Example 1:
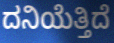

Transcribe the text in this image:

ದನಿಯೆತ್ತಿದೆ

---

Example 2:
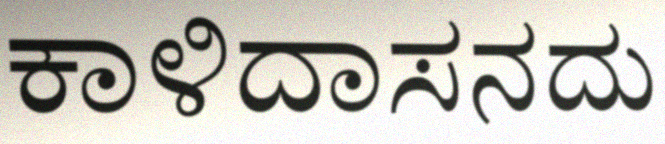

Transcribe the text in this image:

ಕಾಳಿದಾಸನದು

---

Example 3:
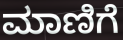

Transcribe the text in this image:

ಮಾಣಿಗೆ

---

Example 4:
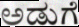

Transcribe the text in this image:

ಅಡುಗೆ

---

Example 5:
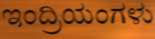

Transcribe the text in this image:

ಇಂದ್ರಿಯಂಗಳು